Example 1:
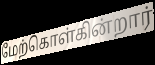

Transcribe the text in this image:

மேற்கொள்கின்றார்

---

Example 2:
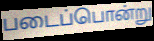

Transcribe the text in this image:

படைப்பொன்று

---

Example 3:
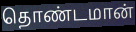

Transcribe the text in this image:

தொண்டமான்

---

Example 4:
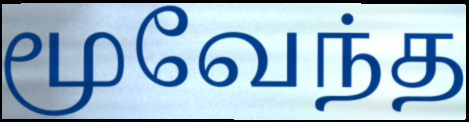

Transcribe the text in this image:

மூவேந்த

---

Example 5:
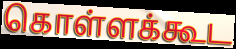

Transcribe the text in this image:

கொள்ளக்கூட